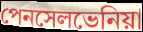
পেনসেলভেনিয়া